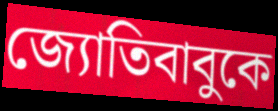
জ্যোতিবাবুকে